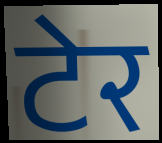
टेर